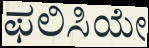
ಫಲಿಸಿಯೇ